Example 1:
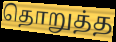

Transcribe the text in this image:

தொறுத்த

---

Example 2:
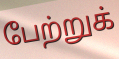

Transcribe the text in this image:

பேற்றுக்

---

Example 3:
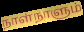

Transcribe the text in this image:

நாள்நாளும்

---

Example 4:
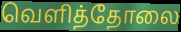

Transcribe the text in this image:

வெளித்தோலை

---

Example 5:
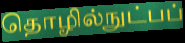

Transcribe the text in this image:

தொழில்நுட்பப்